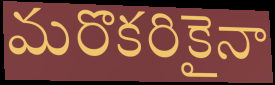
మరొకరికైనా